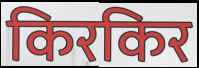
किरकिर